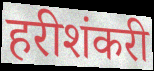
हरीशंकरी